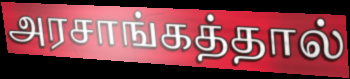
அரசாங்கத்தால்